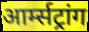
आर्म्सट्रांग